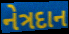
નેત્રદાન